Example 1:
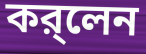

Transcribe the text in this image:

কর্‌লেন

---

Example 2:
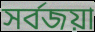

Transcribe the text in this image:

সর্বজয়া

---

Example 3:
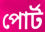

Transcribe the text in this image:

পোর্ট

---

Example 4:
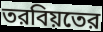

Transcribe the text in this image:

তরবিয়তের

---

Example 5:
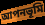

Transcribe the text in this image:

আপনভূমি